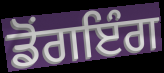
ਡੋਂਗਇੰਗ